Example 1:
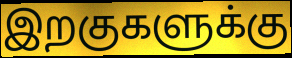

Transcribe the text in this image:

இறகுகளுக்கு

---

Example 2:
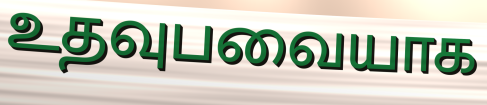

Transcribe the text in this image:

உதவுபவையாக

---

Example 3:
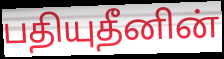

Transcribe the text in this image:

பதியுதீனின்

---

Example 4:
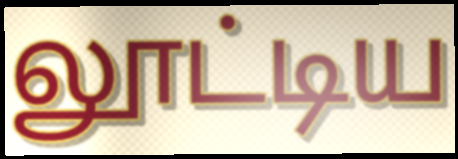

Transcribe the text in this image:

லூட்டிய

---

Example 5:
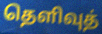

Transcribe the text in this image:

தெளிவுத்